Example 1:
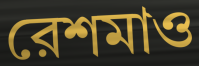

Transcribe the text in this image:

রেশমাও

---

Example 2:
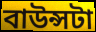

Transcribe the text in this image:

বাউন্সটা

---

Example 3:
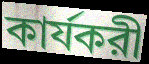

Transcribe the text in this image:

কার্যকরী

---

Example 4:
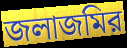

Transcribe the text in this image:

জলাজমির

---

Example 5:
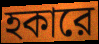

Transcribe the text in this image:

হকারে